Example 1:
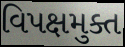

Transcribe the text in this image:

વિપક્ષમુક્ત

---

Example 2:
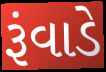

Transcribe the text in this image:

રૂંવાડે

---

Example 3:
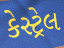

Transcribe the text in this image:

કેસ્ટ્રેલ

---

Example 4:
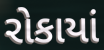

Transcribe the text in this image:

રોકાયાં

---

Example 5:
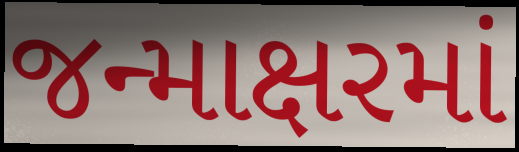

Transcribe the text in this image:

જન્માક્ષરમાં